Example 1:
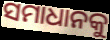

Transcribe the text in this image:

ସମାଧାନକୁ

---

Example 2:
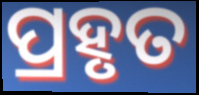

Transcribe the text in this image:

ପ୍ରହୃତ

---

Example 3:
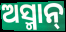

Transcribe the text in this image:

ଅସ୍ମାନ୍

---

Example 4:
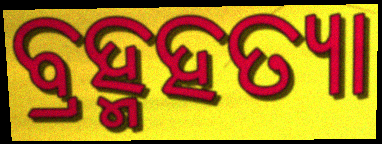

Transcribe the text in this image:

ବ୍ରହ୍ମହତ୍ୟା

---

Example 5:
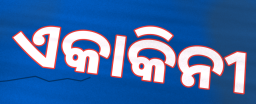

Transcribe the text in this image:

ଏକାକିନୀ